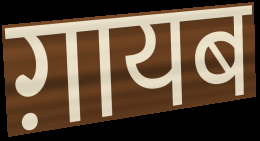
ग़ायब